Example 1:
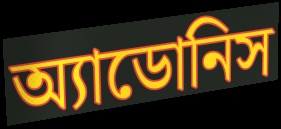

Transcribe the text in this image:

অ্যাডোনিস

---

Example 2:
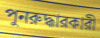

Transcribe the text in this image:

পুনরুদ্ধারকারী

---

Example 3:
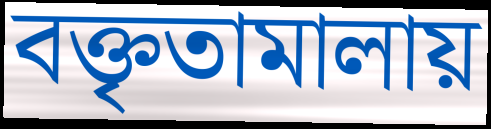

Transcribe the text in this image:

বক্তৃতামালায়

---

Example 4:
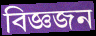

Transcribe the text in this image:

বিজ্ঞজন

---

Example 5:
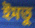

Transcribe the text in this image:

ইমতু